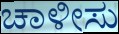
ಚಾಳೀಸು